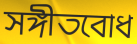
সঙ্গীতবোধ